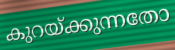
കുറയ്ക്കുന്നതോ